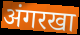
अंगरखा